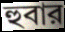
হুবার